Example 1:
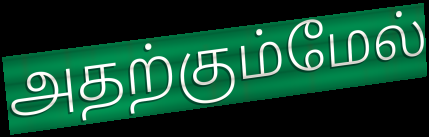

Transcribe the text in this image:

அதற்கும்மேல்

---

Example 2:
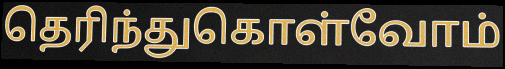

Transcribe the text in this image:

தெரிந்துகொள்வோம்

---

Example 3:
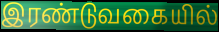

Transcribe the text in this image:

இரண்டுவகையில்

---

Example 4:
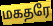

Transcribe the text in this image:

மகதரே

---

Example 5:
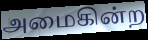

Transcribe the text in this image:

அமைகின்ற